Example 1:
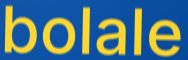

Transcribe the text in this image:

bolale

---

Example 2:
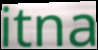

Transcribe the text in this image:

itna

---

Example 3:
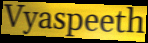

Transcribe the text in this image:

Vyaspeeth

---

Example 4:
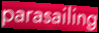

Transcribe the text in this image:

parasailing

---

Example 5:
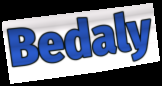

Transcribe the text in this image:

Bedaly